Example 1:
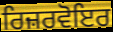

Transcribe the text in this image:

ਰਿਜ਼ਰਵੋਇਰ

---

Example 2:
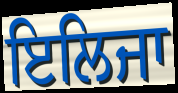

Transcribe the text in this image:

ਇਲਿਜਾ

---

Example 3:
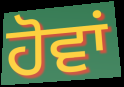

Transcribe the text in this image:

ਹੋਵਾਂ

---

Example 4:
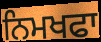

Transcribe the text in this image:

ਨਿਮਖਫਾ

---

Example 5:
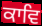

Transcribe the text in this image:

ਕਾਵਿ